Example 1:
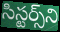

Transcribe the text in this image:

సిస్టర్స్‌ని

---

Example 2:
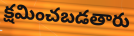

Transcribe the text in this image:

క్షమించబడతారు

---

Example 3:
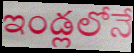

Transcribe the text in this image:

ఇండ్లలోనే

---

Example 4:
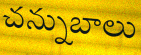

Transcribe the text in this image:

చన్నుబాలు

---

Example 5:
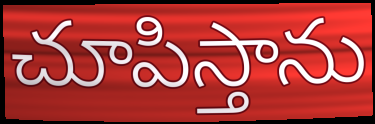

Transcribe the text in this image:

చూపిస్తాను